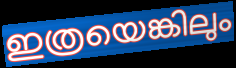
ഇത്രയെങ്കിലും